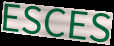
ESCES